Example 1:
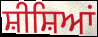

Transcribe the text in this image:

ਸ਼ੀਸ਼ਿਆਂ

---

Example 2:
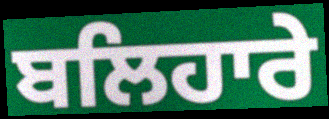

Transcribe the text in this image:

ਬਲਿਹਾਰੇ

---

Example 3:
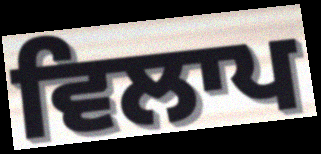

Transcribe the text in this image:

ਵਿਲਾਪ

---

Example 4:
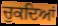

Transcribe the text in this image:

ਚੁਕਦਿਆਂ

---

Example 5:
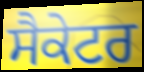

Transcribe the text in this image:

ਸੈਕੇਟਰ